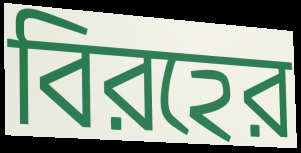
বিরহের